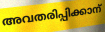
അവതരിപ്പിക്കാന്